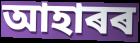
আহাৰৰ